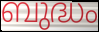
ബുദ്ധം